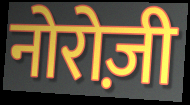
नोरोज़ी